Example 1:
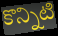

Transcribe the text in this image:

కొన్నిటి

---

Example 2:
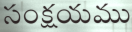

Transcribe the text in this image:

సంక్షయము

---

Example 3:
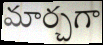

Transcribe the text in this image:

మార్చగా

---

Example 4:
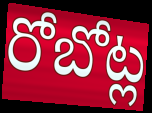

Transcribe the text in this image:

రోబోట్ల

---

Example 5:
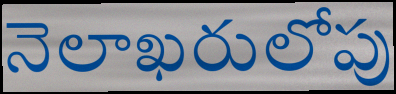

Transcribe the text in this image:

నెలాఖరులోపు